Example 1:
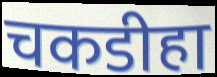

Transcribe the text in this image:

चकडीहा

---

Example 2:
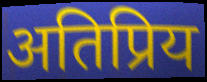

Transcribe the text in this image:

अतिप्रिय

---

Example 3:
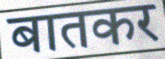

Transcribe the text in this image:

बातकर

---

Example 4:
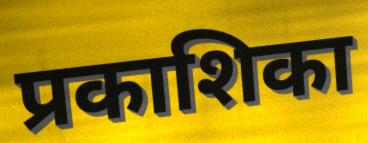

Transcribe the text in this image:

प्रकाशिका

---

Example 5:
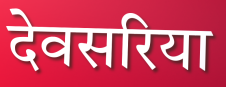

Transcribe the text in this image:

देवसरिया